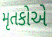
મૃતકોએ